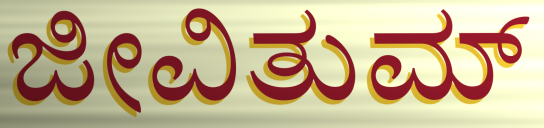
ಜೀವಿತುಮ್